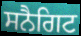
ਸਨੈਗਿਟ